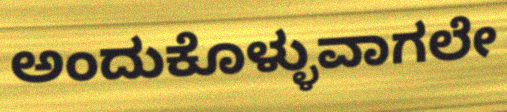
ಅಂದುಕೊಳ್ಳುವಾಗಲೇ